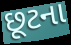
છૂટના